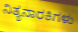
ನಿತ್ಯನಾರಕಿಗಳು